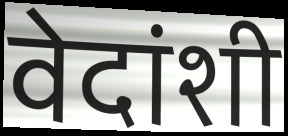
वेदांशी